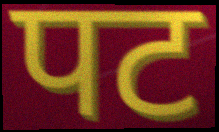
पट